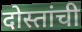
दोस्तांची